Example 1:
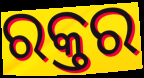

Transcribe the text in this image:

ରକ୍ତର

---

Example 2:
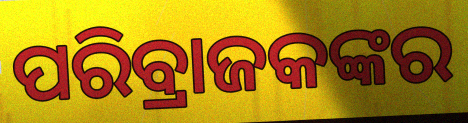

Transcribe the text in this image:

ପରିବ୍ରାଜକଙ୍କର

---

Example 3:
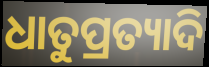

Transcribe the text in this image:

ଧାତୁପ୍ରତ୍ୟାଦି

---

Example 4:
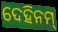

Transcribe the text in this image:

ଦେହିନମ୍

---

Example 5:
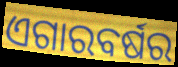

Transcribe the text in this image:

ଏଗାରବର୍ଷର